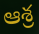
ఆశ్ర